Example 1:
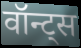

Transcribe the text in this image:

वॉन्ट्स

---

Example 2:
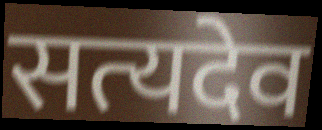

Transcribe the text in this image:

सत्‍यदेव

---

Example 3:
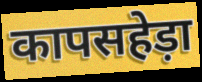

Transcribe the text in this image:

कापसहेड़ा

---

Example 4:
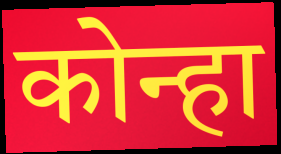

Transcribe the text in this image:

कोन्हा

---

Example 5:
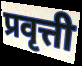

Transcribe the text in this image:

प्रवृत्ती